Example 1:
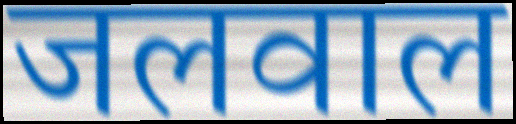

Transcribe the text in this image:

जलवाल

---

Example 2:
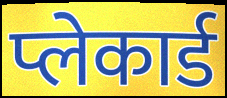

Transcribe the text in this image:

प्‍लेकार्ड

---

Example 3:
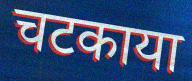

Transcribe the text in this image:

चटकाया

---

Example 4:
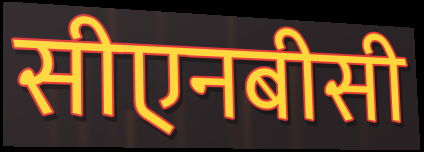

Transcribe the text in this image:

सीएनबीसी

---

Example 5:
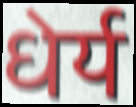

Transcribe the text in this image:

धेर्य